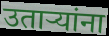
उताऱ्यांना